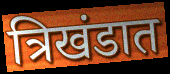
त्रिखंडात